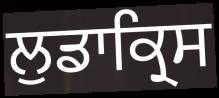
ਲੁਡਾਕ੍ਰਿਸ